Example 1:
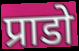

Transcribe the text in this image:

प्राडो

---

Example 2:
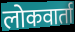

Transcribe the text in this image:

लोकवार्ता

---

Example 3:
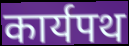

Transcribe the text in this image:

कार्यपथ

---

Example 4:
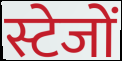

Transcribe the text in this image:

स्टेजों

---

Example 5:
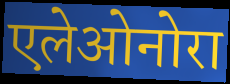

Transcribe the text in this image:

एलेओनोरा